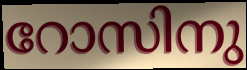
റോസിനു